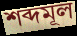
শব্দমূল